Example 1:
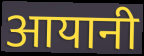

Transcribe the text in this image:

आयानी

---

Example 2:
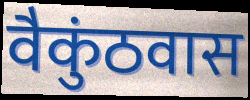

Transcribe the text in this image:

वैकुंठवास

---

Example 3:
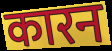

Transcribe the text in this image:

कारन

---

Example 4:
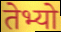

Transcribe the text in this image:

तेभ्यो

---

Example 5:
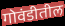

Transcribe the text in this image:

गोवंडीतील